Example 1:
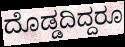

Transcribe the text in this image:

ದೊಡ್ಡದಿದ್ದರೂ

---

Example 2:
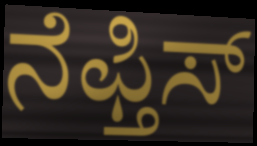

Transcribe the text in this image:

ನೆಫ್ತಿಸ್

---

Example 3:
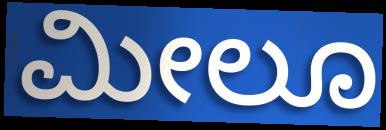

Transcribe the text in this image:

ಮೀಲೂ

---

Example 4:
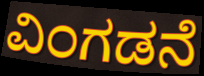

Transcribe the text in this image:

ವಿಂಗಡನೆ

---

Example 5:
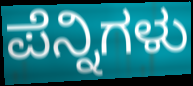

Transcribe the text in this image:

ಪೆನ್ನಿಗಳು